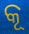
କୂ